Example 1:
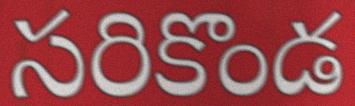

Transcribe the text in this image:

సరికొండ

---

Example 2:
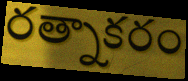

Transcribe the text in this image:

రత్నాకరం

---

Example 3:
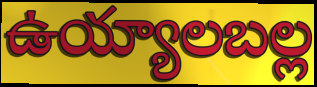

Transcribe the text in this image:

ఉయ్యాలబల్ల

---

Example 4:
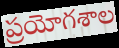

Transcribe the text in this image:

ప్రయోగశాల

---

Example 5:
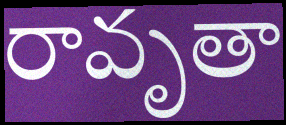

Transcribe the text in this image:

రావృతా